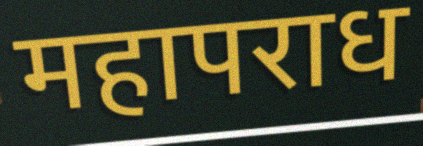
महापराध